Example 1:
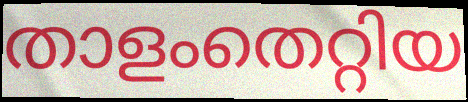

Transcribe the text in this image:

താളംതെറ്റിയ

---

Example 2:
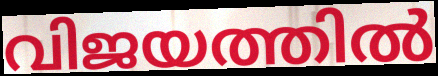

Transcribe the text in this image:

വിജയത്തിൽ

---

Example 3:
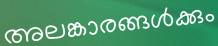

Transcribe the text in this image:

അലങ്കാരങ്ങൾക്കും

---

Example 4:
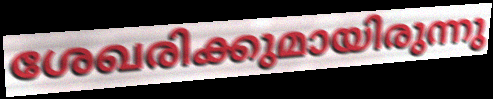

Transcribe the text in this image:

ശേഖരിക്കുമായിരുന്നു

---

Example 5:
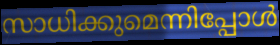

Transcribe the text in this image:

സാധിക്കുമെന്നിപ്പോൾ